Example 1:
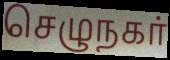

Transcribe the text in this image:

செழுநகர்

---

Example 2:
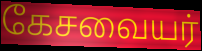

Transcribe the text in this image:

கேசவையர்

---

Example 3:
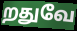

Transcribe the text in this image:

றதுவே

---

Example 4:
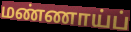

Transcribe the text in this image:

மண்ணாய்ப்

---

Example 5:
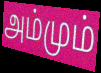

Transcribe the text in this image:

அம்மும்